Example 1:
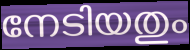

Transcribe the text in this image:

നേടിയതും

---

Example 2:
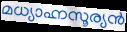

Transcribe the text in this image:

മധ്യാഹ്നസൂര്യൻ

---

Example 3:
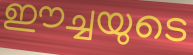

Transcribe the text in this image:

ഈച്ചയുടെ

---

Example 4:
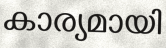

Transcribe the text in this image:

കാര്യമായി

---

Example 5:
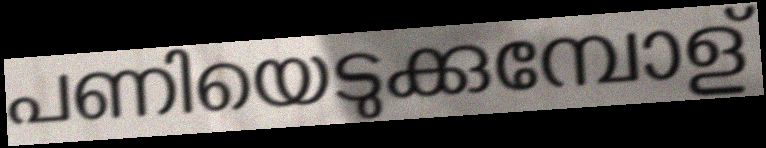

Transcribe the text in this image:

പണിയെടുക്കുമ്പോള്